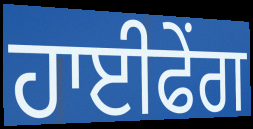
ਹਾਈਫੇਂਗ